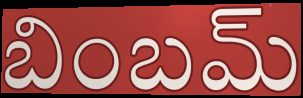
బింబమ్